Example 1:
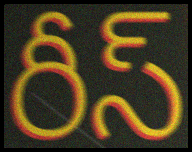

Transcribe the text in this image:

రీస్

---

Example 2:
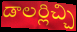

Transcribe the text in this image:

డాలర్లిచ్చి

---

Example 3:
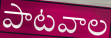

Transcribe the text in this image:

పాటవాల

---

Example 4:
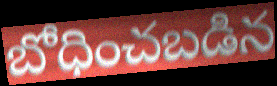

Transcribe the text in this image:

బోధించబడిన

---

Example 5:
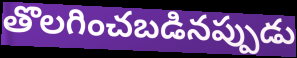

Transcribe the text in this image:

తొలగించబడినప్పుడు